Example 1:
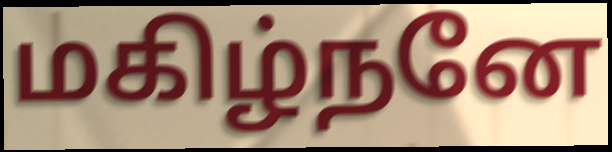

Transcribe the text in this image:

மகிழ்நனே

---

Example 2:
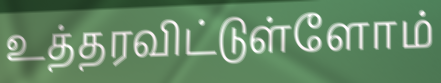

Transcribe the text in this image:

உத்தரவிட்டுள்ளோம்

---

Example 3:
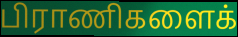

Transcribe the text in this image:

பிராணிகளைக்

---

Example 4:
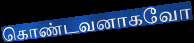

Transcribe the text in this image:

கொண்டவனாகவோ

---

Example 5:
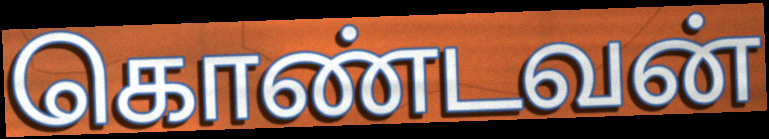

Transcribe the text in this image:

கொண்டவன்